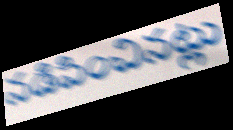
నడిపించినట్లు